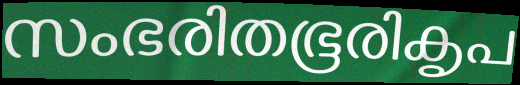
സംഭരിതഭൂരികൃപ